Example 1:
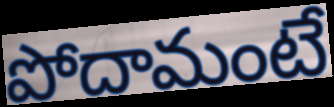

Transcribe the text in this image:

పోదామంటే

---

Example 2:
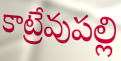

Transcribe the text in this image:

కాట్రేవుపల్లి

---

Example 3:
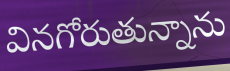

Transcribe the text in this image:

వినగోరుతున్నాను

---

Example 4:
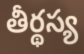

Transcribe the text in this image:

తీర్థస్య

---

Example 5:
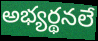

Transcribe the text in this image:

అభ్యర్థనలే